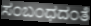
ಸಂಬಂಧದಂತೆ